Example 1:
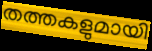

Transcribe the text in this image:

തത്തകളുമായി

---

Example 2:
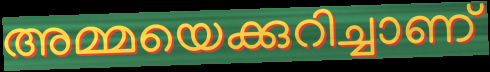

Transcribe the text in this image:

അമ്മയെക്കുറിച്ചാണ്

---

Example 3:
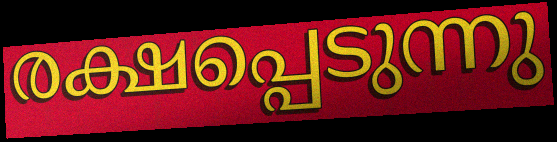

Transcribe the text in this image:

രക്ഷപ്പെടുന്നു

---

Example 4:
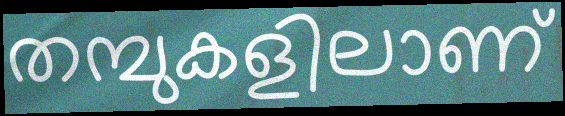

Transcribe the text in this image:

തമ്പുകളിലാണ്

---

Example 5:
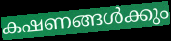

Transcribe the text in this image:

കഷണങ്ങൾക്കും